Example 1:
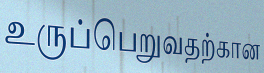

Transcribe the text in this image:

உருப்பெறுவதற்கான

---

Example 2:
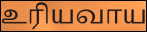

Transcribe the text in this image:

உரியவாய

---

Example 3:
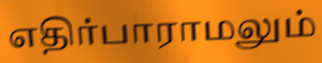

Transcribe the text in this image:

எதிர்பாராமலும்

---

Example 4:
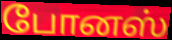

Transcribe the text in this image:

போனஸ்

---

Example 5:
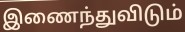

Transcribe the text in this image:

இணைந்துவிடும்